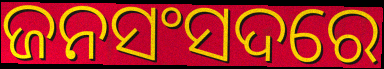
ଜନସଂସଦରେ